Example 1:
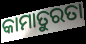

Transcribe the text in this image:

କାମାତୁରତା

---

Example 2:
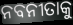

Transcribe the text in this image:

ନବନୀତାକୁ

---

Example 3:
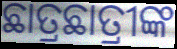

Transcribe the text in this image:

ଛାତ୍ରଛାତ୍ରୀଙ୍କ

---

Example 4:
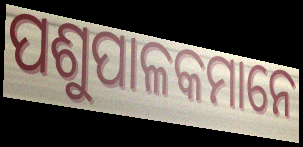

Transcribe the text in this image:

ପଶୁପାଳକମାନେ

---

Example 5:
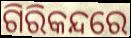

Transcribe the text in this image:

ଗିରିକନ୍ଦରେ